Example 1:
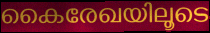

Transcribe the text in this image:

കൈരേഖയിലൂടെ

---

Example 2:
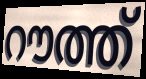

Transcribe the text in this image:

റൗത്ത്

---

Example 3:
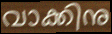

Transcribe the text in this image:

വാക്കിനു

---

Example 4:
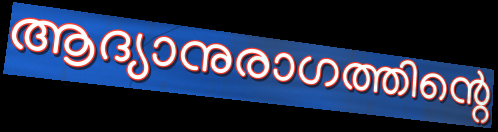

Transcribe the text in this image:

ആദ്യാനുരാഗത്തിന്റെ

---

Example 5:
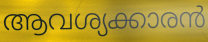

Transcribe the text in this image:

ആവശ്യക്കാരൻ